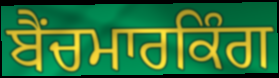
ਬੈਂਚਮਾਰਕਿੰਗ